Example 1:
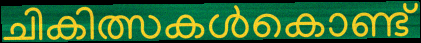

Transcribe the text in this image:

ചികിത്സകൾകൊണ്ട്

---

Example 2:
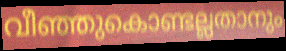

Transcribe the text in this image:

വീഞ്ഞുകൊണ്ടല്ലതാനും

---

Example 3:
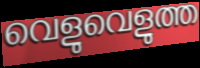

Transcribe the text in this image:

വെളുവെളുത്ത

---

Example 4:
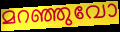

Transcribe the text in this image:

മറഞ്ഞുവോ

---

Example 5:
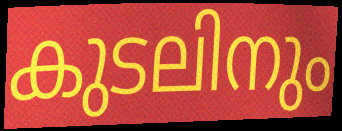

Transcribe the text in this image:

കുടലിനും